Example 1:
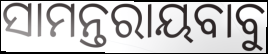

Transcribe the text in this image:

ସାମନ୍ତରାୟବାବୁ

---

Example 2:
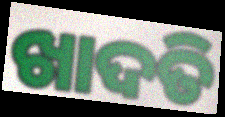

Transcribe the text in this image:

ଖାଦତି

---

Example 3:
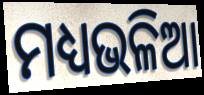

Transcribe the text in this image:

ମଧ୍ୟଭଳିଆ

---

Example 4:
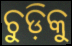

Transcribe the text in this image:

ଚୁଡ଼ିକୁ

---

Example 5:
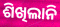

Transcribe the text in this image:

ଶିଖିଲାନି